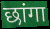
छांगा